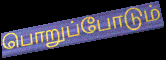
பொறுப்போடும்